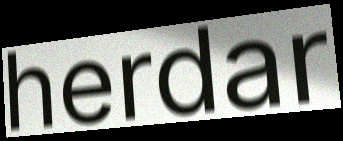
herdar